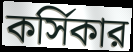
কর্সিকার